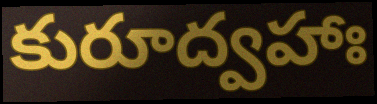
కురూద్వహాః